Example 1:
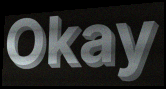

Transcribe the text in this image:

Okay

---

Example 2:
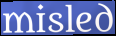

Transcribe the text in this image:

misled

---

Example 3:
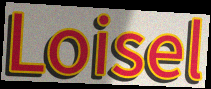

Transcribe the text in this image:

Loisel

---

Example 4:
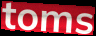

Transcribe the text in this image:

toms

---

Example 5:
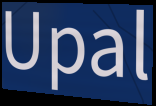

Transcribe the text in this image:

Upal